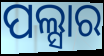
ପଲ୍ସାର